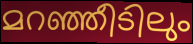
മറഞ്ഞീടിലും